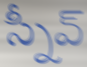
స్నీవ్